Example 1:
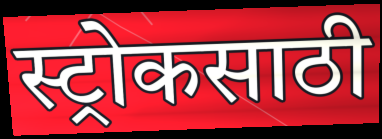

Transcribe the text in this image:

स्ट्रोकसाठी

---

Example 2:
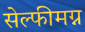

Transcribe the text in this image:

सेल्फीमग्न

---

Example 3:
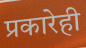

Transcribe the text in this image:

प्रकारेही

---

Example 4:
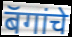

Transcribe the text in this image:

बॅगांचे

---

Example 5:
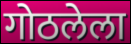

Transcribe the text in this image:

गोठलेला